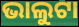
ଭାଲୁଟା